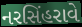
નરસિંહરાવે